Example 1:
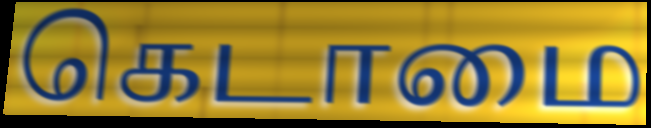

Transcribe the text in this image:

கெடாமை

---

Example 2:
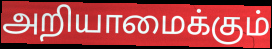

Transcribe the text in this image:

அறியாமைக்கும்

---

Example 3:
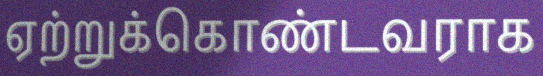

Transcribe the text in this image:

ஏற்றுக்கொண்டவராக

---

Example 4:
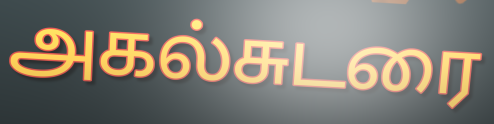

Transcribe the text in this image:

அகல்சுடரை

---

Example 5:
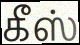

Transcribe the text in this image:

கீஸ்